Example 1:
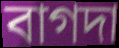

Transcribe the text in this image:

বাগদা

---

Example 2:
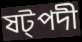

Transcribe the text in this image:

ষট্‌পদী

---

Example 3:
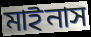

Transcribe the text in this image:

মাইনাস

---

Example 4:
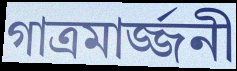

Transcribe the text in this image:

গাত্রমার্জ্জনী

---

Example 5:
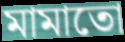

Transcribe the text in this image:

মামাতো